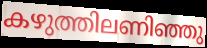
കഴുത്തിലണിഞ്ഞു